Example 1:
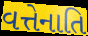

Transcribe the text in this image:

વત્તેનાતિ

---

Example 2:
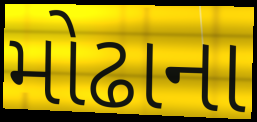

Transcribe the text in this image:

મોઢાના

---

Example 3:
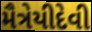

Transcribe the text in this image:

મૈત્રેયીદેવી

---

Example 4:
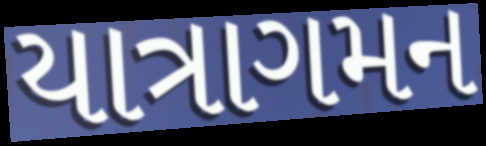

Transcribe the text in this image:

યાત્રાગમન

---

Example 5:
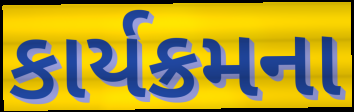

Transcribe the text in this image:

કાર્યક્રમના